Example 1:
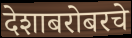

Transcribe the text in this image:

देशाबरोबरचे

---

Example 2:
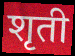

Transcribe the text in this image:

शृती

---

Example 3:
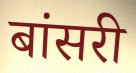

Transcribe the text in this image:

बांसरी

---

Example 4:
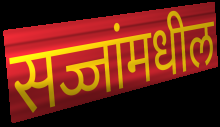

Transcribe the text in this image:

सज्जांमधील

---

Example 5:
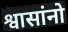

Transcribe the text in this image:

श्वासांनो